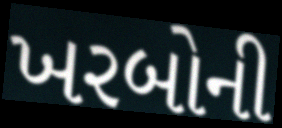
ખરબોની